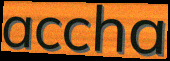
accha